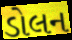
ડોલન